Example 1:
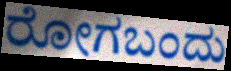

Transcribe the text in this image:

ರೋಗಬಂದು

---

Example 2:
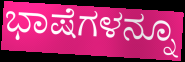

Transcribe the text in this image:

ಭಾಷೆಗಳನ್ನೂ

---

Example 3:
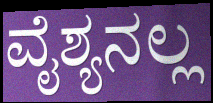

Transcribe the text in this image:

ವೈಶ್ಯನಲ್ಲ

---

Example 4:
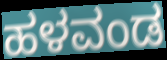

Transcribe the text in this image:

ಹಳವಂಡ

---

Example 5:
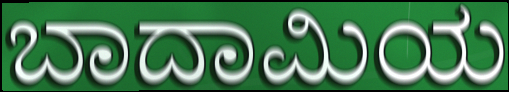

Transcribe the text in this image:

ಬಾದಾಮಿಯ